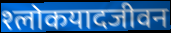
श्लोकयादजीवन